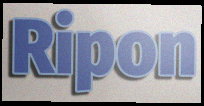
Ripon